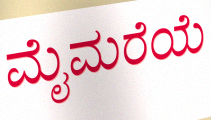
ಮೈಮರೆಯೆ